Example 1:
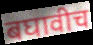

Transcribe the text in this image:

बघावीच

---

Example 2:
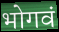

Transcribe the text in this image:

भोगवं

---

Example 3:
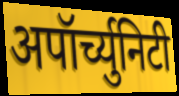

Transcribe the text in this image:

अपॉर्च्युनिटी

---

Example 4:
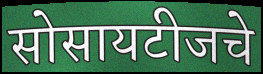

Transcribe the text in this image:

सोसायटीजचे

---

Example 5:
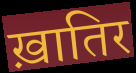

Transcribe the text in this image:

ख़ातिर